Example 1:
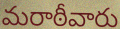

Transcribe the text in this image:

మరాఠీవారు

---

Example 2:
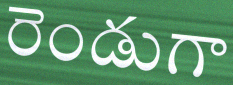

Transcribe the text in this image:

రెండుగా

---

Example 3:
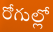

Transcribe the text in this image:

రోగుల్లో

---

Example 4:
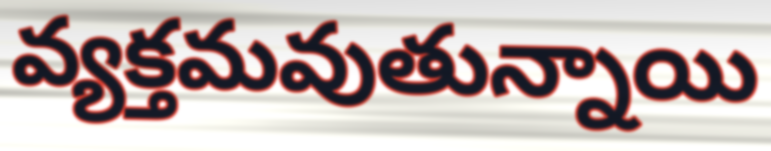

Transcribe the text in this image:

వ్యక్తమవుతున్నాయి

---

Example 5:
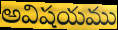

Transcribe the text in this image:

అవిషయము